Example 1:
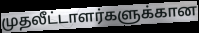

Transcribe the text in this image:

முதலீட்டாளர்களுக்கான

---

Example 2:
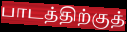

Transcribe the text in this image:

பாடத்திற்குத்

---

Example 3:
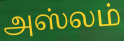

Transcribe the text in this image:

அஸ்லம்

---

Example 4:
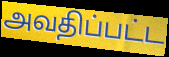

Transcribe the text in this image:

அவதிப்பட்ட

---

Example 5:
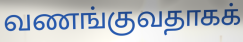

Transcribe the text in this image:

வணங்குவதாகக்